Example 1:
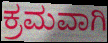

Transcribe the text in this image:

ಕ್ರಮವಾಗಿ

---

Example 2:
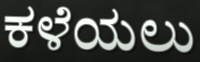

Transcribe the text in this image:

ಕಳೆಯಲು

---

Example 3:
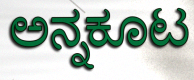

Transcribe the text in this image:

ಅನ್ನಕೂಟ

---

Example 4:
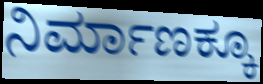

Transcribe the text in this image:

ನಿರ್ಮಾಣಕ್ಕೂ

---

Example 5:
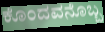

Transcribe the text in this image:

ಕೊಂದವನೊಬ್ಬ